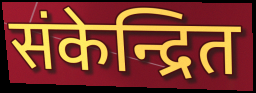
संकेन्द्रित